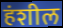
हंशील